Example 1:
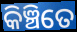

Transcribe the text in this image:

କିଞ୍ଚିତେ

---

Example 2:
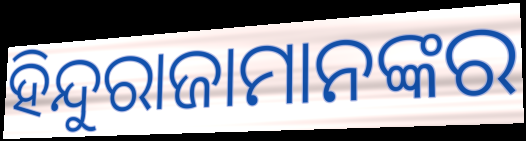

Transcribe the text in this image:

ହିନ୍ଦୁରାଜାମାନଙ୍କର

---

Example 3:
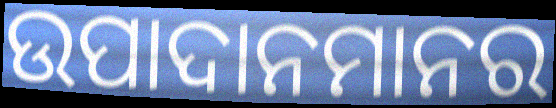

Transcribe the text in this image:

ଉପାଦାନମାନର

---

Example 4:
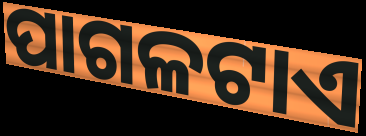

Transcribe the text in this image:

ପାଗଳଟାଏ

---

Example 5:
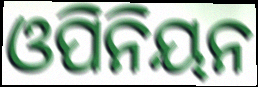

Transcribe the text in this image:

ଓପିନିୟନ